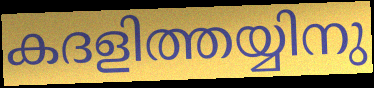
കദളിത്തയ്യിനു